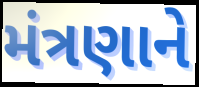
મંત્રણાને